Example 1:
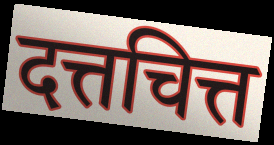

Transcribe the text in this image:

दत्तचित्त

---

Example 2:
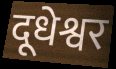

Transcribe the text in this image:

दूधेश्वर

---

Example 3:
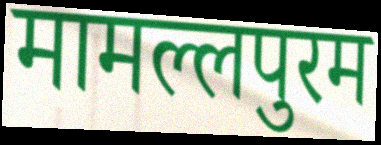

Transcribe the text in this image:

मामल्लपुरम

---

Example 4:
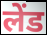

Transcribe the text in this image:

लेंड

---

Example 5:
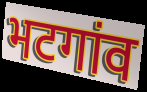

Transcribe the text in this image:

भटगांव